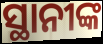
ସ୍ଥାନୀଙ୍କ